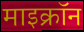
माइक्रॉन